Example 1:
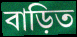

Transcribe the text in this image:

বাড়িত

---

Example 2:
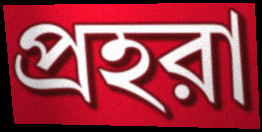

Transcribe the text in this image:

প্রহরা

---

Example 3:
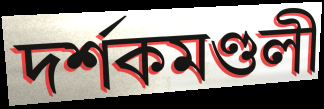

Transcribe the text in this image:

দর্শকমণ্ডলী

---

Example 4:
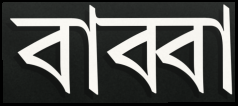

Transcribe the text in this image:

বাব্বা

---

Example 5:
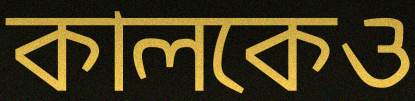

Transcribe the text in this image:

কালকেও